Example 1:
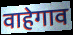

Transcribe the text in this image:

वाहेगाव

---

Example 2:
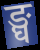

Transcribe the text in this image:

ङ्घ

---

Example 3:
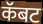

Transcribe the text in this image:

कॅबट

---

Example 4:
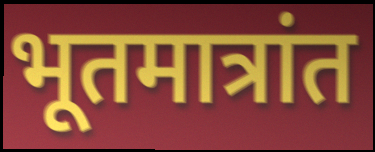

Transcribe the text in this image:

भूतमात्रांत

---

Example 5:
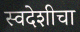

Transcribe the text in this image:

स्वदेशीचा